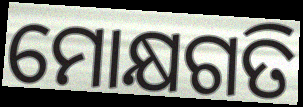
ମୋକ୍ଷଗତି